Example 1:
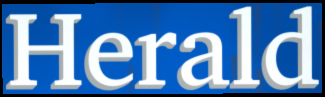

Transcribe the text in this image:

Herald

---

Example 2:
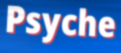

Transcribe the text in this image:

Psyche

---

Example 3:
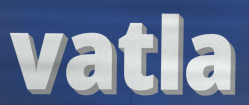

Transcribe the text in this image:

vatla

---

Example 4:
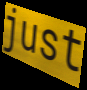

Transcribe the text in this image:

just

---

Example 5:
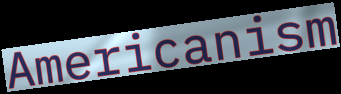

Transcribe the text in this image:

Americanism